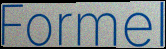
Formel